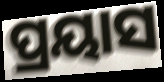
ପ୍ରୟାସ